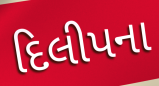
દિલીપના